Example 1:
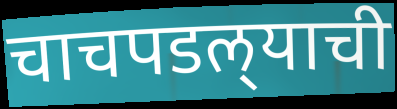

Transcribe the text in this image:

चाचपडल्याची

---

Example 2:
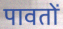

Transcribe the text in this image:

पावतों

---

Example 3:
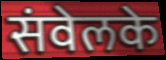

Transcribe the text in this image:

संवेलके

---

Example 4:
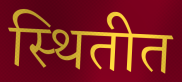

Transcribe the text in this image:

स्थितीत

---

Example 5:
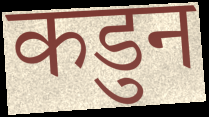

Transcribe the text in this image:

कडुन